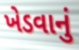
ખેડવાનું